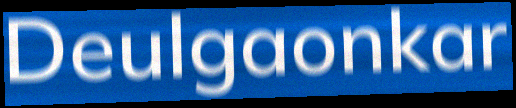
Deulgaonkar